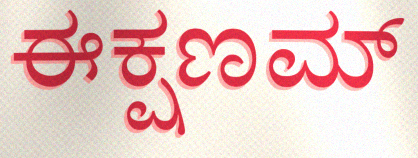
ಈಕ್ಷಣಮ್